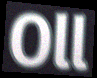
Oll